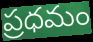
ప్రధమం